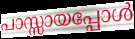
പാസ്സായപ്പോൾ